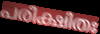
പരീക്ഷിതഃ